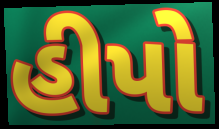
હીપો